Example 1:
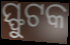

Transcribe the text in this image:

ସ୍ଫୁଟକ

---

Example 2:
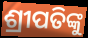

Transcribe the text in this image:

ଶ୍ରୀପତିଙ୍କୁ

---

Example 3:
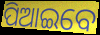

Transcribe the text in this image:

ପିଆଇବେ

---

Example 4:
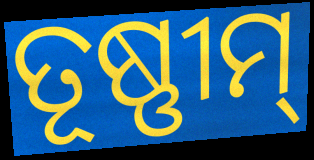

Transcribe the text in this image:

ତୂଷ୍ଣୀମ୍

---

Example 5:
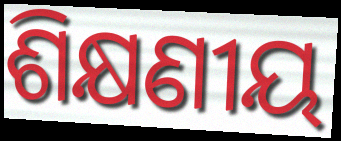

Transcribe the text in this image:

ଶିକ୍ଷଣୀୟ